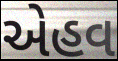
એહવ